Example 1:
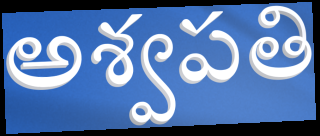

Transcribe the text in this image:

అశ్వపతి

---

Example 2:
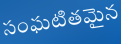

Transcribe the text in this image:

సంఘటితమైన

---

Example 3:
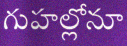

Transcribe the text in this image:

గుహల్లోనూ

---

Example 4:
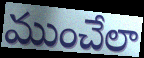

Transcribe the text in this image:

ముంచేలా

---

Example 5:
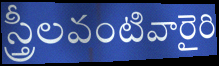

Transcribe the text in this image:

స్త్రీలవంటివారైరి